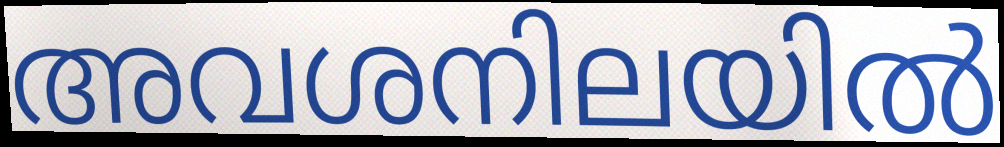
അവശനിലയിൽ